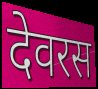
देवरस